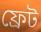
ফ্রেট